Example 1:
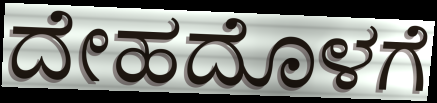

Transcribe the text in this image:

ದೇಹದೊಳಗೆ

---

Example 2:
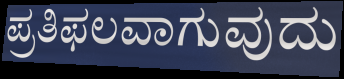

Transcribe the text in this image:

ಪ್ರತಿಫಲವಾಗುವುದು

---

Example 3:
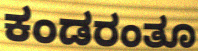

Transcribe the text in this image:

ಕಂಡರಂತೂ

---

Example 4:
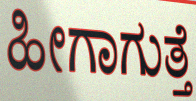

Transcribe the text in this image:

ಹೀಗಾಗುತ್ತೆ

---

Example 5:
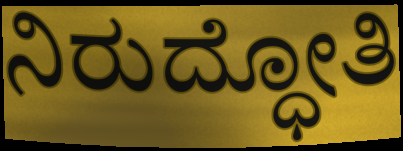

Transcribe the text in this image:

ನಿರುದ್ಧೋತಿ